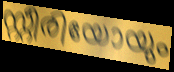
സ്റ്റീരിയോയും